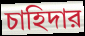
চাহিদার